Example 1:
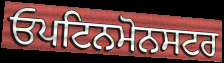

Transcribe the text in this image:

ਓਪਟਿਨਮੋਨਸਟਰ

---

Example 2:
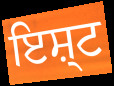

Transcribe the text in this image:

ਇਸ਼੍ਟ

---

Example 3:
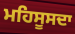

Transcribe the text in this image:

ਮਹਿਸੂਸਦਾ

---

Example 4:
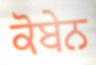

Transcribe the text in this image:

ਕੋਬੇਨ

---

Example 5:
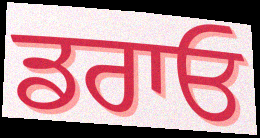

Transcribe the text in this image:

ਡਰਾਓ